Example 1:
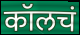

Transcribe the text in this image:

कॉलचं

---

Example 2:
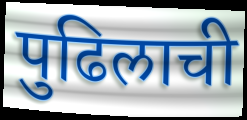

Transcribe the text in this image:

पुढिलाची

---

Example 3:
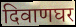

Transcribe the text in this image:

दिवाणघर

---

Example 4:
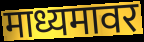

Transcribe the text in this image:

माध्यमावर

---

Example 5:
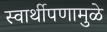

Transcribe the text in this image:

स्वार्थीपणामुळे